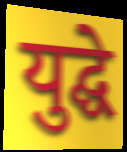
युद्घे